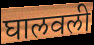
घालवली